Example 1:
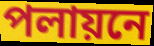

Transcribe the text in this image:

পলায়নে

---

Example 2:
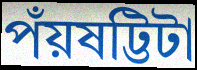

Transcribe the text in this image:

পঁয়ষট্টিটা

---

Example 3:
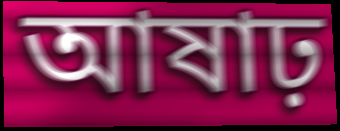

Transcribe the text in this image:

আষাঢ়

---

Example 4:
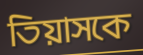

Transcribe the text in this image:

তিয়াসকে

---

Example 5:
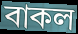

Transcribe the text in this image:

বাকল